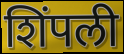
शिंपली